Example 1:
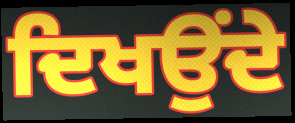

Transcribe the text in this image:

ਦਿਖਉਂਦੇ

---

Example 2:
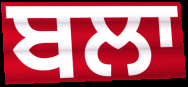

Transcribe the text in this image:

ਬਲਾ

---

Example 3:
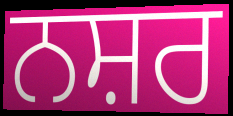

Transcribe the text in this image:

ਨਸ਼ਰ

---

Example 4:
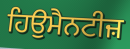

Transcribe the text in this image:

ਹਿਉਮੈਨਟੀਜ਼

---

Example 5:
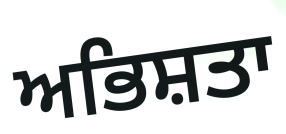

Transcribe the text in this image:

ਅਭਿਸ਼ਤਾ